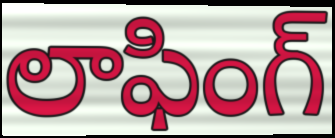
లాఫింగ్